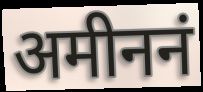
अमीननं